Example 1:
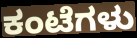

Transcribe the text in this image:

ಕಂಟೆಗಳು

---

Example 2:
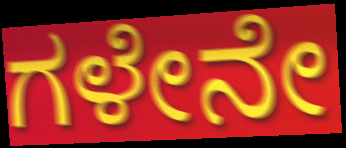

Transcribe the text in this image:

ಗಳೇನೇ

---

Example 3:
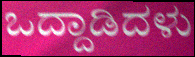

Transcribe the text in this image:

ಒದ್ದಾಡಿದಳು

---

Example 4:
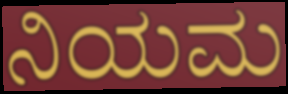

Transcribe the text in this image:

ನಿಯಮ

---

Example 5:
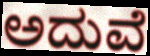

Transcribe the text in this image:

ಅದುವೆ